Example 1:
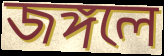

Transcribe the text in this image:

জঙ্গলে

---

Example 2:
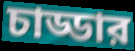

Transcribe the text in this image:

চাড্ডার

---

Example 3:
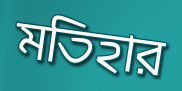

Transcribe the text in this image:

মতিহার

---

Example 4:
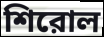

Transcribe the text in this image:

শিরোল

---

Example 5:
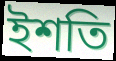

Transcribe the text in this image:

ইশতি